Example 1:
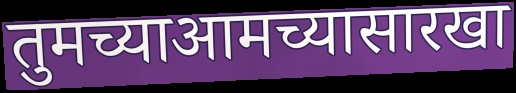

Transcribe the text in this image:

तुमच्याआमच्यासारखा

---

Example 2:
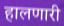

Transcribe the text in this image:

हालणारी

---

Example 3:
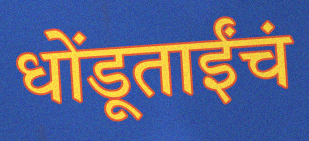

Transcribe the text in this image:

धोंडूताईंचं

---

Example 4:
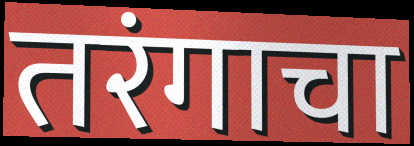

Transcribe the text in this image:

तरंगाचा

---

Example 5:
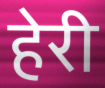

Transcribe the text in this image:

हेरी